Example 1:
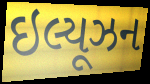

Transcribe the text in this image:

ઇલ્યૂઝન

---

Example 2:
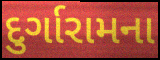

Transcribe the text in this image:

દુર્ગારામના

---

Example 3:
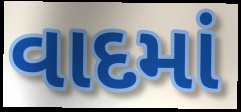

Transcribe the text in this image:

વાદમાં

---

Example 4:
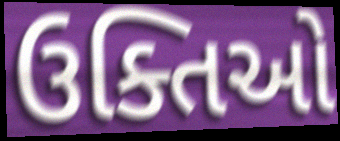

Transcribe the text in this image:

ઉક્તિઓ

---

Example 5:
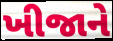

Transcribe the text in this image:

ખીજાને